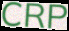
CRP